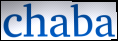
chaba